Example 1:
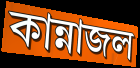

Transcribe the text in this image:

কান্নাজল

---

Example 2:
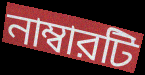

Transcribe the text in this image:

নাম্বারটি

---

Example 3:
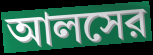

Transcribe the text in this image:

আলসের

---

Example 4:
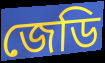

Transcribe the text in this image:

জেডি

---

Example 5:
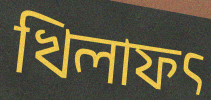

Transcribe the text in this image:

খিলাফৎ